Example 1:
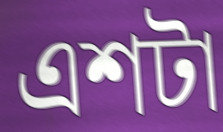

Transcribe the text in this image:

এশটা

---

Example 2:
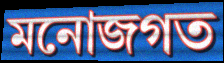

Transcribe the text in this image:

মনোজগত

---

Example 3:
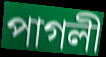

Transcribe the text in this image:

পাগলী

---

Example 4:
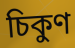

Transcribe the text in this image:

চিকুণ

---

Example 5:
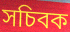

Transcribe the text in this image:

সচিবক